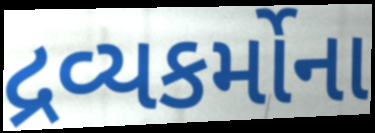
દ્રવ્યકર્મોના